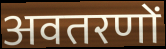
अवतरणों